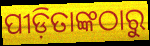
ପୀଡ଼ିତାଙ୍କଠାରୁ